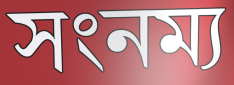
সংনম্য